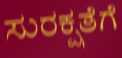
ಸುರಕ್ಷತೆಗೆ